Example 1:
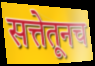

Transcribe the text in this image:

सत्तेतूनच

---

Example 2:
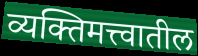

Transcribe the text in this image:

व्यक्तिमत्त्वातील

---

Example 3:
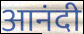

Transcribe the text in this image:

आनंदी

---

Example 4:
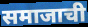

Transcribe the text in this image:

समाजाची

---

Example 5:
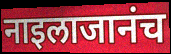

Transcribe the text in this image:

नाइलाजानंच